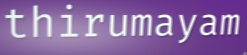
thirumayam